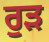
ਰੁੜ